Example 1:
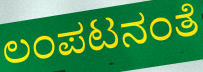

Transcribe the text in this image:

ಲಂಪಟನಂತೆ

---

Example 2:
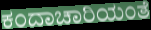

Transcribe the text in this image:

ಕಂದಾಚಾರಿಯಂತೆ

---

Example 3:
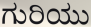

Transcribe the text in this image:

ಗುರಿಯು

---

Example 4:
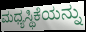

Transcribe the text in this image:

ಮಧ್ಯಸ್ಥಿಕೆಯನ್ನು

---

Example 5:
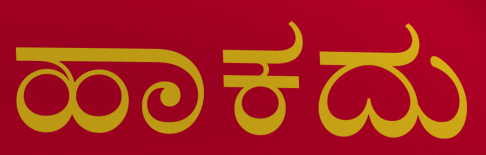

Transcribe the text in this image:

ಹಾಕದು